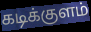
கடிக்குளம்